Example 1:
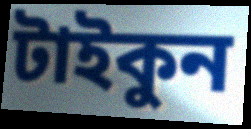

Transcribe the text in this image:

টাইকুন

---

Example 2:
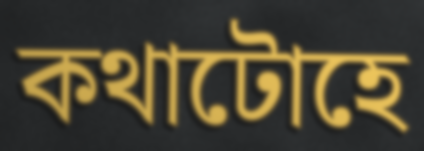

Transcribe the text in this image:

কথাটোহে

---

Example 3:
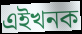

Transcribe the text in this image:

এইখনক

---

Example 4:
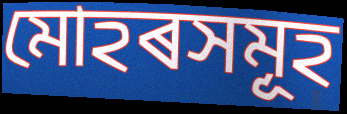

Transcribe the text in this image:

মোহৰসমূহ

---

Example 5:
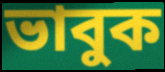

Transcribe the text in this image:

ভাবুক